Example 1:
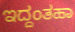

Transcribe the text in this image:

ಇದ್ದಂತಹಾ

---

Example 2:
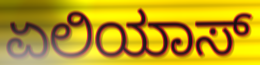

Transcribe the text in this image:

ಏಲಿಯಾಸ್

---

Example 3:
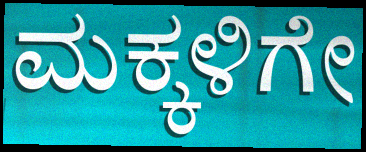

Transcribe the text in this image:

ಮಕ್ಕಳಿಗೇ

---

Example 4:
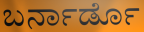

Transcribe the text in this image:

ಬರ್ನಾರ್ಡೊ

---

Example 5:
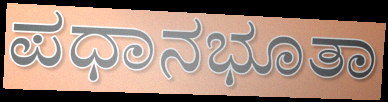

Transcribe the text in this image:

ಪಧಾನಭೂತಾ